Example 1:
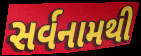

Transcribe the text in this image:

સર્વનામથી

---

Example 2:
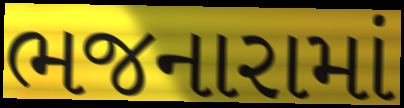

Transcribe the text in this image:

ભજનારામાં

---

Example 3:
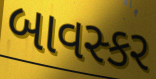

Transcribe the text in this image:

બાવસ્કર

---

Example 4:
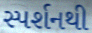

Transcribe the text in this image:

સ્પર્શનથી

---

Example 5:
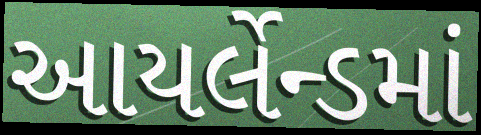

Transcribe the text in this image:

આયર્લેન્ડમાં